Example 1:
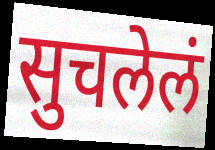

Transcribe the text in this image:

सुचलेलं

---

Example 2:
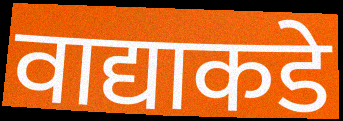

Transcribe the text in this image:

वाद्याकडे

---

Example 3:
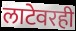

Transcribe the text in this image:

लाटेवरही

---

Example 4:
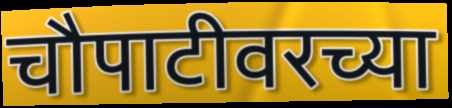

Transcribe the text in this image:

चौपाटीवरच्या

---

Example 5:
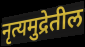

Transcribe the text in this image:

नृत्यमुद्रेतील